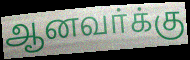
ஆனவர்க்கு